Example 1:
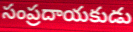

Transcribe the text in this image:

సంప్రదాయకుడు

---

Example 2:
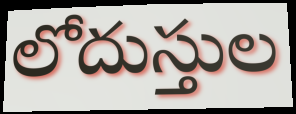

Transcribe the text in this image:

లోదుస్తుల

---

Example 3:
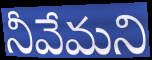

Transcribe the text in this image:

నీవేమని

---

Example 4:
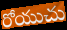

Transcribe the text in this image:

రోయుచు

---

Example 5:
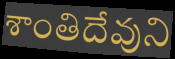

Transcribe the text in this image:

శాంతిదేవుని